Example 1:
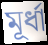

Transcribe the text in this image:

মূর্ধা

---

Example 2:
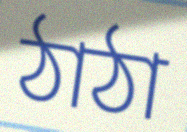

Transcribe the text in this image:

ঠাঠা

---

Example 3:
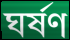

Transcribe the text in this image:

ঘর্ষণ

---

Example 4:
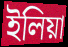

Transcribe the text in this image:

ইলিয়া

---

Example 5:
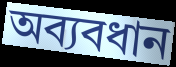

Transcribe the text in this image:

অব্যবধান